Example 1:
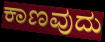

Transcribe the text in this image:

ಕಾಣವುದು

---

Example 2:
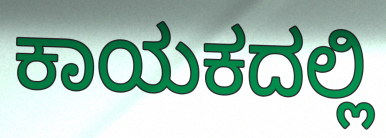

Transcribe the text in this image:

ಕಾಯಕದಲ್ಲಿ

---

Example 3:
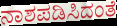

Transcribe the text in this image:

ನಾಶಪಡಿಸಿದಂತೆ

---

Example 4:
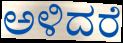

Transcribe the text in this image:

ಅಳಿದರೆ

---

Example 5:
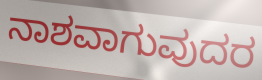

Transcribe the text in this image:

ನಾಶವಾಗುವುದರ